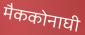
मैककोनाघी